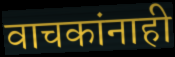
वाचकांनाही